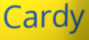
Cardy